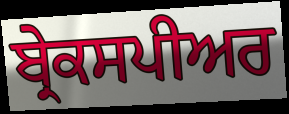
ਬ੍ਰੇਕਸਪੀਅਰ